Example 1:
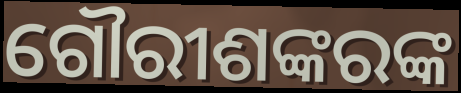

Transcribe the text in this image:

ଗୌରୀଶଙ୍କରଙ୍କ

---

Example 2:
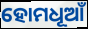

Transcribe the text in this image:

ହୋମଧୂଆଁ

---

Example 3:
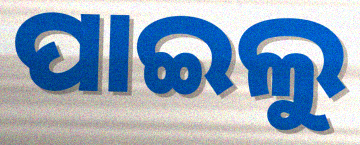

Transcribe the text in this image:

ପାଇଲୁ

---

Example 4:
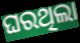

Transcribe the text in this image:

ଘରଥିଲା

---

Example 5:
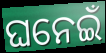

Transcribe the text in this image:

ଘନେଇଁ